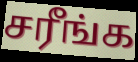
சரீங்க